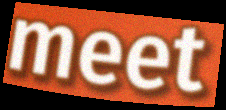
meet